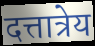
दत्तात्रेय